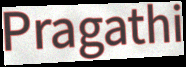
Pragathi